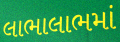
લાભાલાભમાં